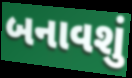
બનાવશું